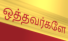
ஒத்தவர்களே